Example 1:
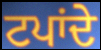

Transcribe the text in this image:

ਟਪਾਂਦੇ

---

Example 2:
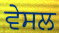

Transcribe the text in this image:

ਵੇਸਲ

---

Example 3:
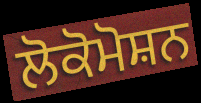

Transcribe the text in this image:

ਲੋਕੋਮੋਸ਼ਨ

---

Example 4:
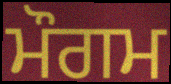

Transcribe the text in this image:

ਮੌਗਮ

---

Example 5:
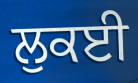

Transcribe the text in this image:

ਲੁਕਈ